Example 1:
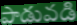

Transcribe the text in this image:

పాడువడి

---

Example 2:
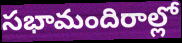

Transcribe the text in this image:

సభామందిరాల్లో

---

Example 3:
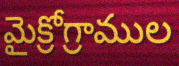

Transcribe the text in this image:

మైక్రోగ్రాముల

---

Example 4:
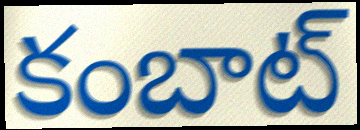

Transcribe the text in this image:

కంబాట్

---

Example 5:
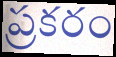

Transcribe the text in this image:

ప్రకరం